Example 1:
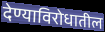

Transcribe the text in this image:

देण्याविरोधातील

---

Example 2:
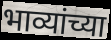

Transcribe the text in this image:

भाव्यांच्या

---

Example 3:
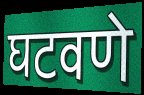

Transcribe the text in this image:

घटवणे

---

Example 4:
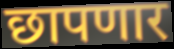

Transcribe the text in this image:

छापणार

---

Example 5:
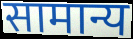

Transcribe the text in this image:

सामान्य